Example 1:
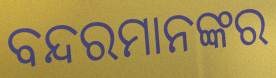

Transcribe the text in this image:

ବନ୍ଦରମାନଙ୍କର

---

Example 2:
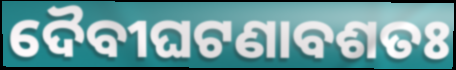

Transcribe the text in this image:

ଦୈବୀଘଟଣାବଶତଃ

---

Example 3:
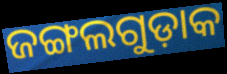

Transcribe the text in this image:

ଜଙ୍ଗଲଗୁଡ଼ାକ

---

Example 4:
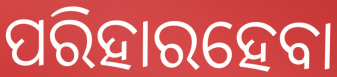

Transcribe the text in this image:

ପରିହାରହେବା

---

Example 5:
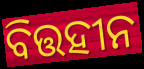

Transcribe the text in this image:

ବିତ୍ତହୀନ